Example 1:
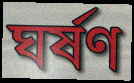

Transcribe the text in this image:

ঘৰ্ষণ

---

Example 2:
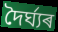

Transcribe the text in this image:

দৈৰ্ঘ্যৰ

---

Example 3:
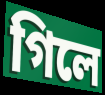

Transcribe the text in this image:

গিলে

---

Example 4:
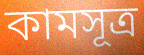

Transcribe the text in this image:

কামসূত্ৰ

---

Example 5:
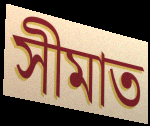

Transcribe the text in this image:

সীমাত